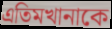
এতিমখানাকে